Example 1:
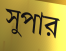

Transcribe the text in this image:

সুপার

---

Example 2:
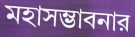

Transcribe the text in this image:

মহাসম্ভাবনার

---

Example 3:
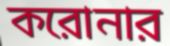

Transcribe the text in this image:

করোনার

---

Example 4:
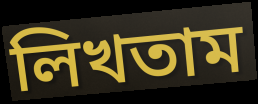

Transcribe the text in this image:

লিখতাম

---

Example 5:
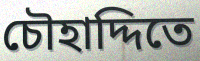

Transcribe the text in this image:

চৌহাদ্দিতে